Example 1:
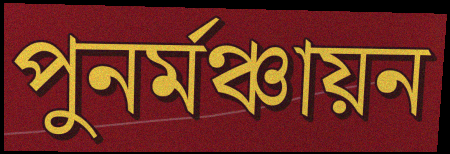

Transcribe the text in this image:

পুনর্মঞ্চায়ন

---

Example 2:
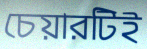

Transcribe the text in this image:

চেয়ারটিই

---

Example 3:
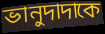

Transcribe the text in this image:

ভানুদাদাকে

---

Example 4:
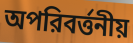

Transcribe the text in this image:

অপরিবর্ত্তনীয়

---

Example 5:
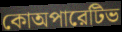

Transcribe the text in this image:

কোঅপারেটিভ